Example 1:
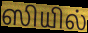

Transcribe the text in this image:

ஸியில்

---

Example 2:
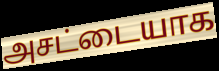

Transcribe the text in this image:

அசட்டையாக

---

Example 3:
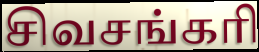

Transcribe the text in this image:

சிவசங்கரி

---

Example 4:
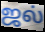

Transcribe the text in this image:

ஜல்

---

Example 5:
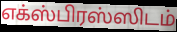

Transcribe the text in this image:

எக்ஸ்பிரஸ்ஸிடம்